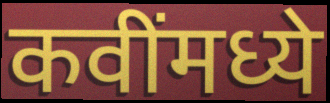
कवींमध्ये